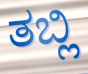
ತಬ್ಲಿ